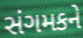
સંગમકને